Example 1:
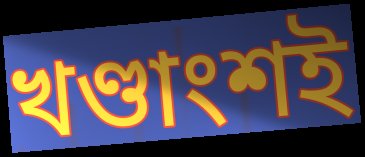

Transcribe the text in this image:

খণ্ডাংশই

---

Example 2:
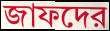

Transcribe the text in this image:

জাফদের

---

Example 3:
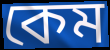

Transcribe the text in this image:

কেম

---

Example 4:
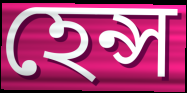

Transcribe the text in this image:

হেন্স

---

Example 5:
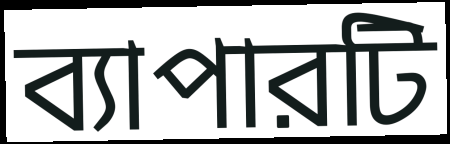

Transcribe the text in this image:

ব্যাপারটি